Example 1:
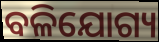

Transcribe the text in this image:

ବଳିଯୋଗ୍ୟ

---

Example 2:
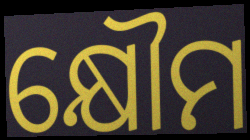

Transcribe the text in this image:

କ୍ଷୌମ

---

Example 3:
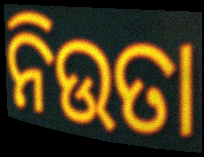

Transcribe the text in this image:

ନିଉତା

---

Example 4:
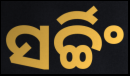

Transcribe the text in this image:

ସର୍ଚ୍ଚିଂ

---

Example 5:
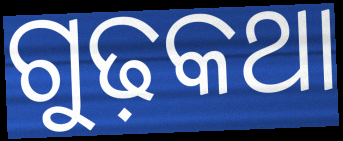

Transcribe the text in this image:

ଗୁଢ଼କଥା